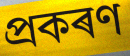
প্ৰকৰণ